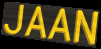
JAAN